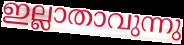
ഇല്ലാതാവുന്നു